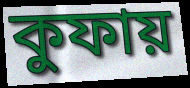
কুফায়